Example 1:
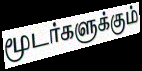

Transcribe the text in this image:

மூடர்களுக்கும்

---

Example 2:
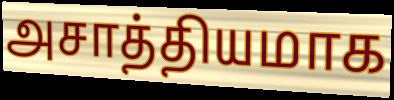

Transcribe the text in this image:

அசாத்தியமாக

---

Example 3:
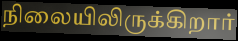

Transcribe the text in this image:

நிலையிலிருக்கிறார்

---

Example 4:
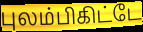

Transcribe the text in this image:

புலம்பிகிட்டே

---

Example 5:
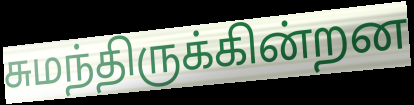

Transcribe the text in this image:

சுமந்திருக்கின்றன